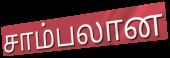
சாம்பலான